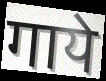
गाये